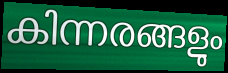
കിന്നരങ്ങളും